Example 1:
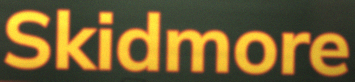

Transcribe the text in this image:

Skidmore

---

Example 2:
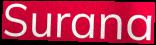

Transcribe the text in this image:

Surana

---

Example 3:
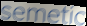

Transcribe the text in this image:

semetic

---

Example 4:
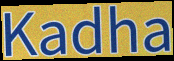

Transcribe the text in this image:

Kadha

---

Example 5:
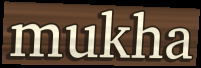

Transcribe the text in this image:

mukha